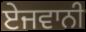
ਏਜਵਾਨੀ